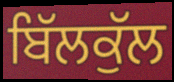
ਬਿੱਲਕੁੱਲ